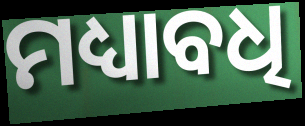
ମଧ୍ୟାବଧି